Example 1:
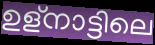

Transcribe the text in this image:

ഉള്നാട്ടിലെ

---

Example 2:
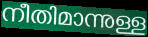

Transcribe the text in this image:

നീതിമാന്നുള്ള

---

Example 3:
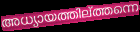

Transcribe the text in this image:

അധ്യായത്തില്ത്തന്നെ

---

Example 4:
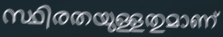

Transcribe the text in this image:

സ്ഥിരതയുള്ളതുമാണ്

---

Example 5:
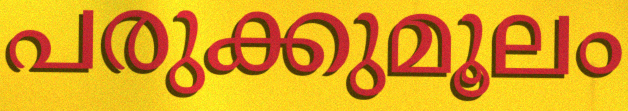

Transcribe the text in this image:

പരുക്കുമൂലം